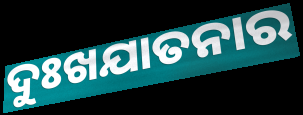
ଦୁଃଖଯାତନାର